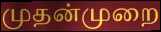
முதன்முறை